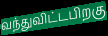
வந்துவிட்டபிறகு